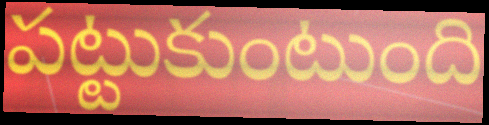
పట్టుకుంటుంది